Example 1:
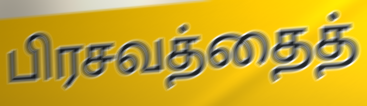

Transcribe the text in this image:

பிரசவத்தைத்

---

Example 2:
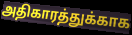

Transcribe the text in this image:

அதிகாரத்துக்காக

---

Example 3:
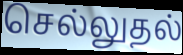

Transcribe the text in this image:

செல்லுதல்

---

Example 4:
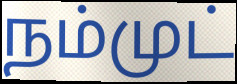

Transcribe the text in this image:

நம்முட்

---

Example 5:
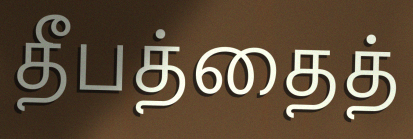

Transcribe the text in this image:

தீபத்தைத்